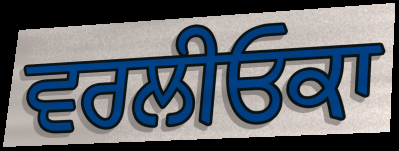
ਵਰਲੀਓਕਾ